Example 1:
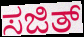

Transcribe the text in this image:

ಸಜಿತ್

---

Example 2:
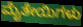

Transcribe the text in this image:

ಮೈತೇಯಿಗಳು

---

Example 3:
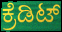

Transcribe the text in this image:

ಕ್ರೆಡಿಟ್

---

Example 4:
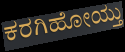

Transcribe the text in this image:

ಕರಗಿಹೋಯ್ತು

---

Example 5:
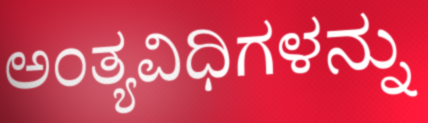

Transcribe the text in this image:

ಅಂತ್ಯವಿಧಿಗಳನ್ನು